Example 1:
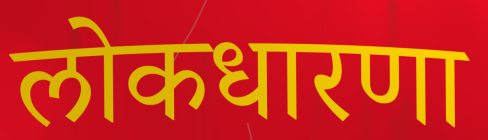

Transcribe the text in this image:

लोकधारणा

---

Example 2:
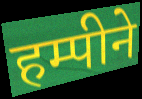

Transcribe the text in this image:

हम्पीने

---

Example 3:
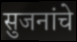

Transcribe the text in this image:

सुजनांचे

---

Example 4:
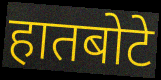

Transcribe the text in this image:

हातबोटे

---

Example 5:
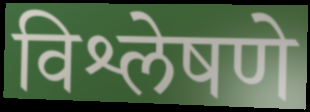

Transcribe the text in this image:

विश्लेषणे